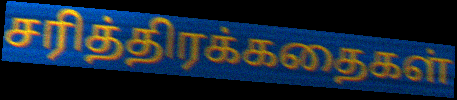
சரித்திரக்கதைகள்